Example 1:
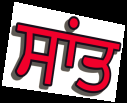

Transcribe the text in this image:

ਸਾਂਤ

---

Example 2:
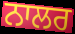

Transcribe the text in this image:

ਨਾਲਰ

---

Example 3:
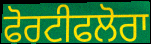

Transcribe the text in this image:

ਫੋਰਟੀਫਲੋਰਾ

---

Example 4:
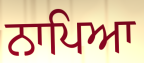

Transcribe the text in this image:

ਨਾਪਿਆ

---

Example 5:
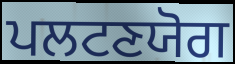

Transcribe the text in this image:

ਪਲਟਣਯੋਗ